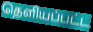
தெளியப்பட்ட